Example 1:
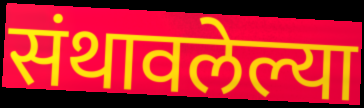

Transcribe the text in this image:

संथावलेल्या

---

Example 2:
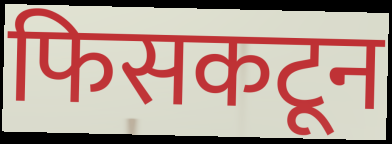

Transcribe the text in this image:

फिसकटून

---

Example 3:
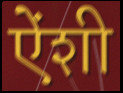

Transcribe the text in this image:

ऐंशी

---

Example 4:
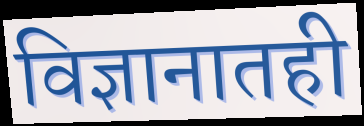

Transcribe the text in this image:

विज्ञानातही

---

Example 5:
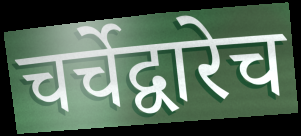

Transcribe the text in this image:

चर्चेद्वारेच